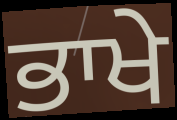
ਭਾਖੇ